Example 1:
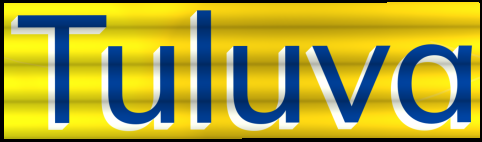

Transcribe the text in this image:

Tuluva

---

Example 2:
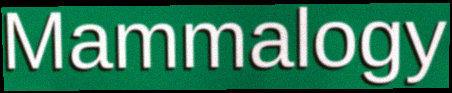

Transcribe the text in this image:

Mammalogy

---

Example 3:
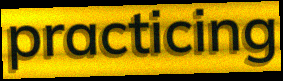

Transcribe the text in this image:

practicing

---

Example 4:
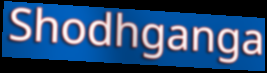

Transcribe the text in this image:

Shodhganga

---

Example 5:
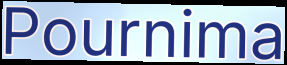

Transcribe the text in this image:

Pournima